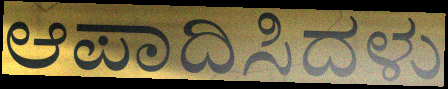
ಆಪಾದಿಸಿದಳು